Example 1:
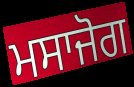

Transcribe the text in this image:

ਮਸਾਜੋਗ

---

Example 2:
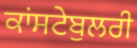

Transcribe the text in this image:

ਕਾਂਸਟੇਬੁਲਰੀ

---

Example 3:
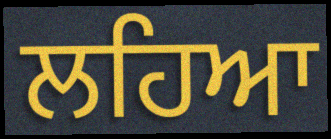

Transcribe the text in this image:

ਲਹਿਆ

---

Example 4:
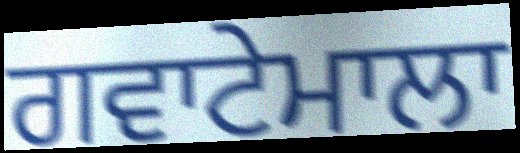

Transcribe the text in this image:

ਗਵਾਟੇਮਾਲਾ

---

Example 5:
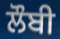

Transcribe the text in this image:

ਲੌਬੀ